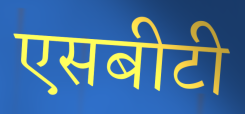
एसबीटी